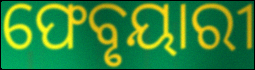
ଫେବୃୟାରୀ